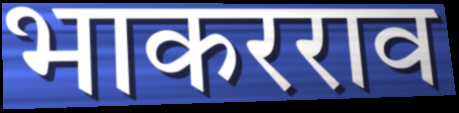
भाकरराव